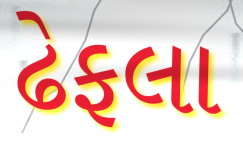
ઢેફલા